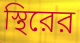
স্থিরের